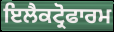
ਇਲੈਕਟ੍ਰੋਫਾਰਮ